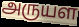
அருயள